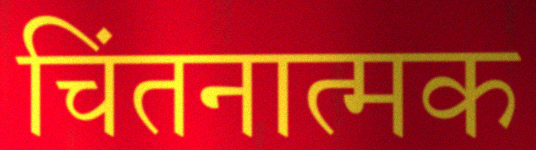
चिंतनात्मक